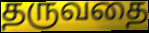
தருவதை